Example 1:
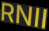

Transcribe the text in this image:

RNII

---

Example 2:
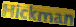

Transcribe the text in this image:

Hickman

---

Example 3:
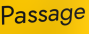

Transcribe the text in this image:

Passage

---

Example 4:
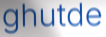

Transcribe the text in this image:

ghutde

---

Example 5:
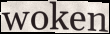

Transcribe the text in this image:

woken